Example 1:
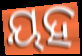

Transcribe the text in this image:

ୟହ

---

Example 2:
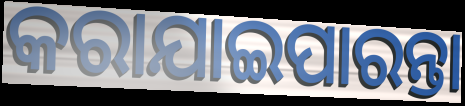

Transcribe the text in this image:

କରାଯାଇପାରନ୍ତା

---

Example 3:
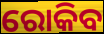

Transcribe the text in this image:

ରୋକିବ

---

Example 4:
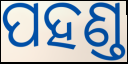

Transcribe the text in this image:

ପହଣ୍ଡ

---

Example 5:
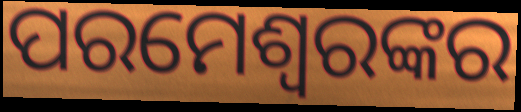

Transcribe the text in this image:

ପରମେଶ୍ୱରଙ୍କର